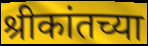
श्रीकांतच्या